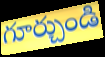
గూర్చుండి